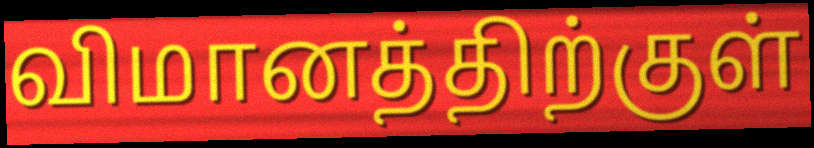
விமானத்திற்குள்